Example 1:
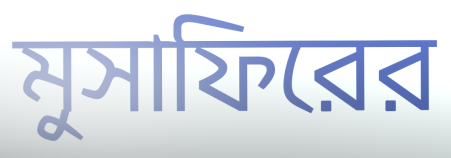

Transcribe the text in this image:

মুসাফিরের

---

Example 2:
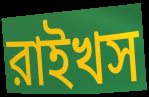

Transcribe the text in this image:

রাইখস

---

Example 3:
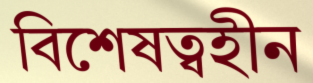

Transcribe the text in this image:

বিশেষত্বহীন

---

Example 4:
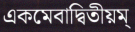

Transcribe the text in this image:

একমেবাদ্বিতীয়ম্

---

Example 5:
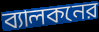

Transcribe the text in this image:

ব্যালকনের